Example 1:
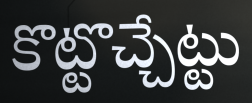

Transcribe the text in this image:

కొట్టొచ్చేట్టు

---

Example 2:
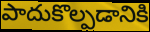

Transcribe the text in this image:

పాదుకొల్పడానికి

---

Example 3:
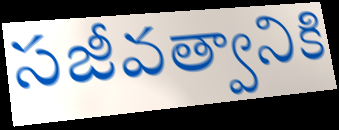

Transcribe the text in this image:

సజీవత్వానికి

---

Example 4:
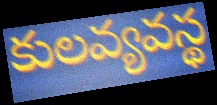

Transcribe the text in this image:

కులవ్యవస్థ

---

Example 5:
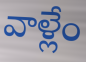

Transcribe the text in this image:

వాళ్లేం